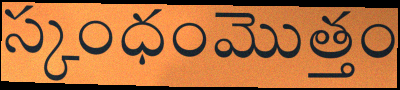
స్కంధంమొత్తం